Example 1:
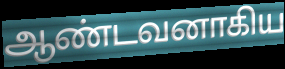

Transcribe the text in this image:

ஆண்டவனாகிய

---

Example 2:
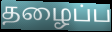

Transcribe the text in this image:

தழைப்ப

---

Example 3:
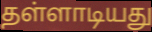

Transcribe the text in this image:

தள்ளாடியது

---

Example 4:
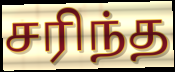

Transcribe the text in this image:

சரிந்த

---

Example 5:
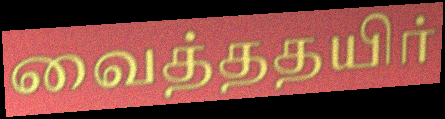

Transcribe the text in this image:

வைத்ததயிர்